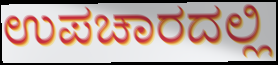
ಉಪಚಾರದಲ್ಲಿ